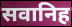
सवानिह